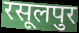
रसूलपुर